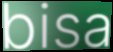
bisa